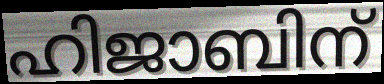
ഹിജാബിന്